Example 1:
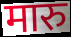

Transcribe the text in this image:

मारु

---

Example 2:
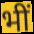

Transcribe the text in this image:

भीं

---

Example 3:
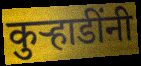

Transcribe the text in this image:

कुर्‍हाडींनी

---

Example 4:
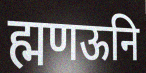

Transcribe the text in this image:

ह्मणऊनि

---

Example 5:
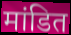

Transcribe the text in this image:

मांडित